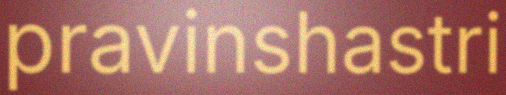
pravinshastri